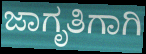
ಜಾಗೃತಿಗಾಗಿ